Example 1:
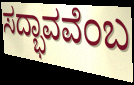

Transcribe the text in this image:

ಸದ್ಭಾವವೆಂಬ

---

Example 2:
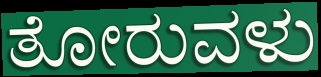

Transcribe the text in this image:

ತೋರುವಳು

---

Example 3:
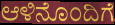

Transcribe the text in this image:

ಆಳಿನೊಂದಿಗೆ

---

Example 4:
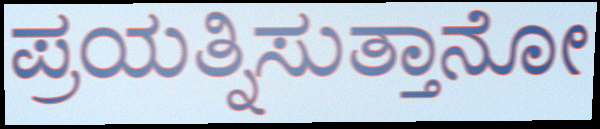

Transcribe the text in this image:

ಪ್ರಯತ್ನಿಸುತ್ತಾನೋ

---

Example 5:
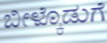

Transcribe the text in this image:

ಬೀಳ್ಕೊಡುಗೆ